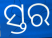
ସ୍ତର